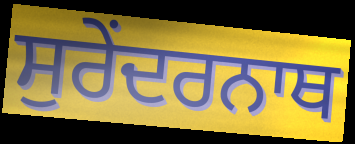
ਸੁਰੇਂਦਰਨਾਥ